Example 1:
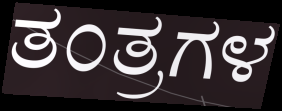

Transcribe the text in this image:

ತಂತ್ರಗಳ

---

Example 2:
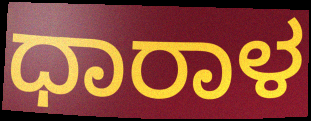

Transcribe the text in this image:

ಧಾರಾಳ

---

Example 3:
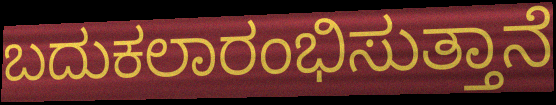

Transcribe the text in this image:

ಬದುಕಲಾರಂಭಿಸುತ್ತಾನೆ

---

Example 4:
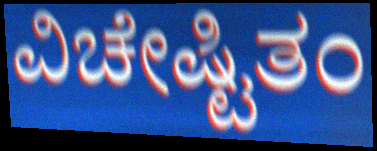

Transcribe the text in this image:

ವಿಚೇಷ್ಟಿತಂ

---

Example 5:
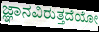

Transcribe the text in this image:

ಜ್ಞಾನವಿರುತ್ತದೆಯೋ